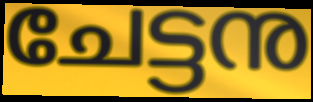
ചേട്ടനു